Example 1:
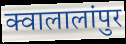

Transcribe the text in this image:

क्वालालांपुर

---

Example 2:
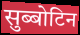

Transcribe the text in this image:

सुब्बोटिन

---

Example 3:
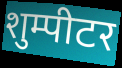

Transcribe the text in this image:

शुम्पीटर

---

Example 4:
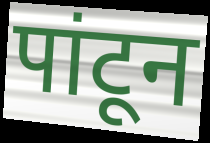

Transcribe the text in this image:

पांटून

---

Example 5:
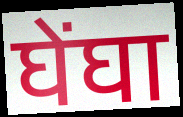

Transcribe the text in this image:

घेंघा